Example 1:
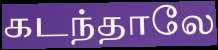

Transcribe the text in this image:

கடந்தாலே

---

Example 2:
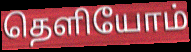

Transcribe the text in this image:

தெளியோம்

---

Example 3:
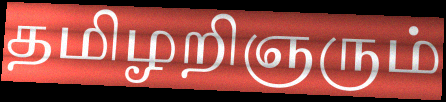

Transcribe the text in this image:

தமிழறிஞரும்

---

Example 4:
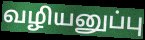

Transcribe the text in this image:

வழியனுப்பு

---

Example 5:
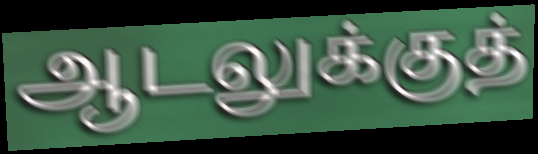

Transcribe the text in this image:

ஆடலுக்குத்